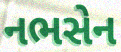
નભસેન